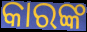
କାରଙ୍କ